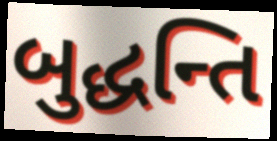
બુદ્ધન્તિ